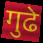
गुढे